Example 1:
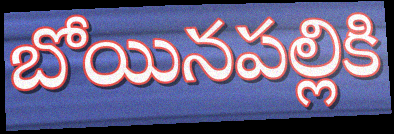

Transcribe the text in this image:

బోయినపల్లికి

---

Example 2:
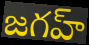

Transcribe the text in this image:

జగహ్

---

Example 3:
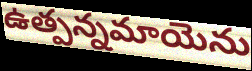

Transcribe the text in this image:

ఉత్పన్నమాయెను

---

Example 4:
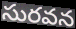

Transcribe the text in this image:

సురవన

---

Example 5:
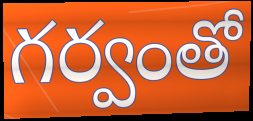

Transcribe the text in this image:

గర్వంతో